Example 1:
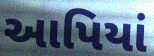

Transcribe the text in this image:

આપિયાં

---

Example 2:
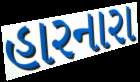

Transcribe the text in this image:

હારનારા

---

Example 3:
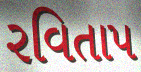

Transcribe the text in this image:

રવિતાપ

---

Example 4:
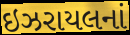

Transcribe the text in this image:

ઇઝરાયલનાં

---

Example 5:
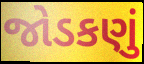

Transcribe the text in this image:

જોડકણું